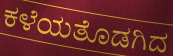
ಕಳೆಯತೊಡಗಿದ